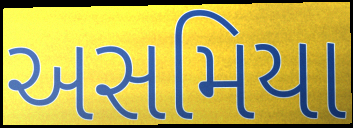
અસમિયા